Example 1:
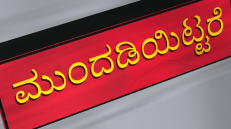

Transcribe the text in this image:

ಮುಂದಡಿಯಿಟ್ಟರೆ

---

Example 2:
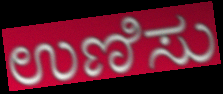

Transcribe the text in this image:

ಉಣಿಸು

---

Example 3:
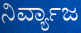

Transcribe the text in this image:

ನಿರ್ವ್ಯಾಜ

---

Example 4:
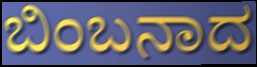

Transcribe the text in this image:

ಬಿಂಬನಾದ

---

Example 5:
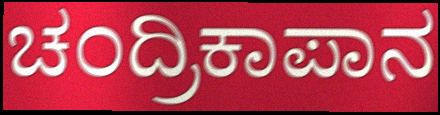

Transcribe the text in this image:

ಚಂದ್ರಿಕಾಪಾನ